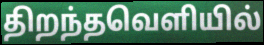
திறந்தவெளியில்